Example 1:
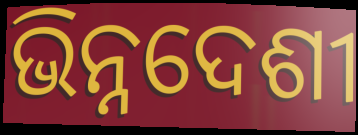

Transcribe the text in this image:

ଭିନ୍ନଦେଶୀ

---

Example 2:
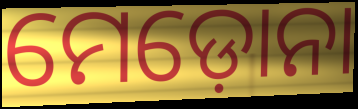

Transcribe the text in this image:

ମେଡ଼ୋନା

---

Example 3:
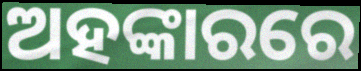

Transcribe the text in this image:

ଅହଙ୍କାରରେ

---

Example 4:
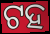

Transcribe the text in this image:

ଟହ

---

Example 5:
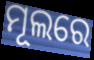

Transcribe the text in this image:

ମୂଲରେ